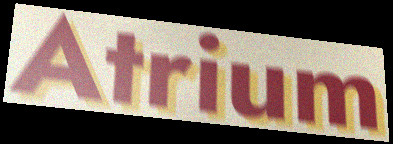
Atrium